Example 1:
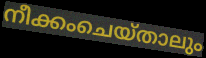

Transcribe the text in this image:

നീക്കംചെയ്താലും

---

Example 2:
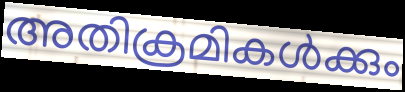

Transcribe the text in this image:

അതിക്രമികൾക്കും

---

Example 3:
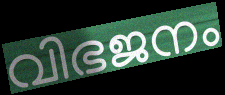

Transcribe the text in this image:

വിഭജനം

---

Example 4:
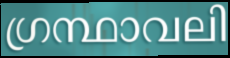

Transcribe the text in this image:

ഗ്രന്ഥാവലി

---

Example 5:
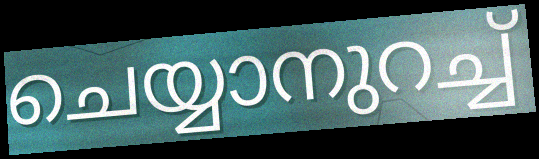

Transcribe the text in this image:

ചെയ്യാനുറച്ച്